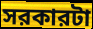
সরকারটা